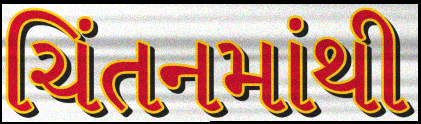
ચિંતનમાંથી